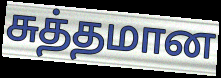
சுத்தமான